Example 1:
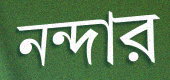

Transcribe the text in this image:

নন্দার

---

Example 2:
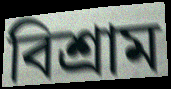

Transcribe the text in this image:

বিশ্রাম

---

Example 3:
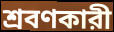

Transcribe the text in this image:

শ্রবণকারী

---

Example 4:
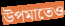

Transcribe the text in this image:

উপমাতেও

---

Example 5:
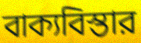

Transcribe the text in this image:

বাক্যবিস্তার